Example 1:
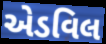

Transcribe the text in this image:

એડવિલ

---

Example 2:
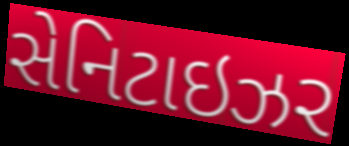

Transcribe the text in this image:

સેનિટાઇઝર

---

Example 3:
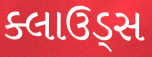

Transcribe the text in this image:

ક્લાઉડ્સ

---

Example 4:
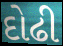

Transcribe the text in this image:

દોઢી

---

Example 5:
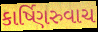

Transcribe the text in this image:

કાર્ષ્ણિરુવાચ